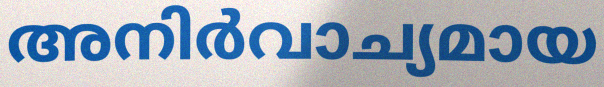
അനിർവാച്യമായ